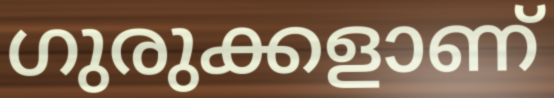
ഗുരുക്കളാണ്